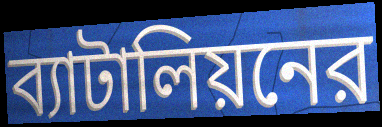
ব্যাটালিয়নের